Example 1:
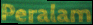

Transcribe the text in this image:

Peralam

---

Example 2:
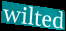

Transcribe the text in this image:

wilted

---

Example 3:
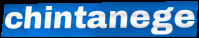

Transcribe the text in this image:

chintanege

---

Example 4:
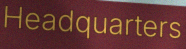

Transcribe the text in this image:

Headquarters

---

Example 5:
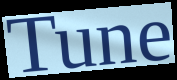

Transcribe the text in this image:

Tune